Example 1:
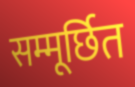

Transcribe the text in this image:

सम्मूर्छित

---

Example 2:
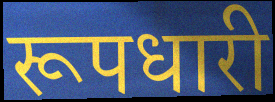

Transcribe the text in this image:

रूपधारी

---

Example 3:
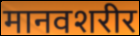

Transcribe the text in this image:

मानवशरीर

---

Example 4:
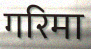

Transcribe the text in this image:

गरिमा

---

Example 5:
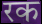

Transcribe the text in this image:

रक